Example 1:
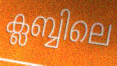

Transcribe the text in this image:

ക്ലബ്ബിലെ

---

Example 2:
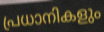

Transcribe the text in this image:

പ്രധാനികളും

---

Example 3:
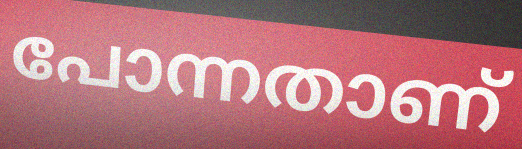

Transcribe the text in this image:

പോന്നതാണ്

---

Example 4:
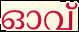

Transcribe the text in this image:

ഓവ്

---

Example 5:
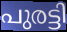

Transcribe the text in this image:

പുരട്ടി